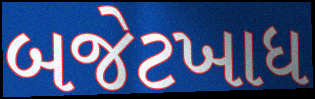
બજેટખાધ